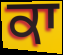
ਕਾ